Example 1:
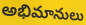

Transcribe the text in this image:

అభిమానులు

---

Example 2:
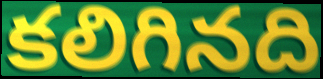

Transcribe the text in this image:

కలిగినది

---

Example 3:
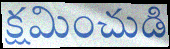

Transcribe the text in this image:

క్షమించుడి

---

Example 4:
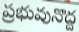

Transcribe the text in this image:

ప్రభువునొద్ద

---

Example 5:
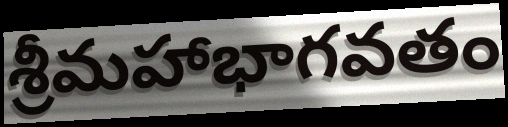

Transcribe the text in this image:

శ్రీమహాభాగవతం